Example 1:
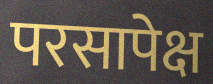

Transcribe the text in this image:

परसापेक्ष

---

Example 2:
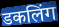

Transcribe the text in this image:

डकलिंग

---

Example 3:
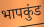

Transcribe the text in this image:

भापकुंड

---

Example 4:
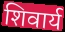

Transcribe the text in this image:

शिवार्य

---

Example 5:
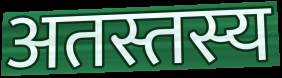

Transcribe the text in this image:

अतस्तस्य